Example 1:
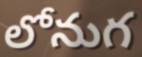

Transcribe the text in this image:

లోనుగ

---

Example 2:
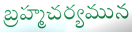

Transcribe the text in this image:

బ్రహ్మచర్యమున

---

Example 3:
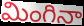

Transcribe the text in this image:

మింగినా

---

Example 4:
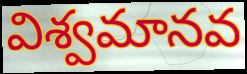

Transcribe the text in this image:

విశ్వమానవ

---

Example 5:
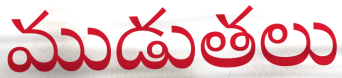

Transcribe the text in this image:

ముడుతలు